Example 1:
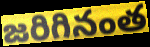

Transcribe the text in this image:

జరిగినంత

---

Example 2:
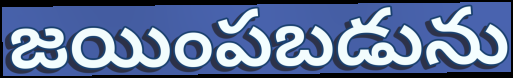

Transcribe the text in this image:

జయింపబడును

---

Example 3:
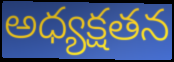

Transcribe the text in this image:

అధ్యక్షతన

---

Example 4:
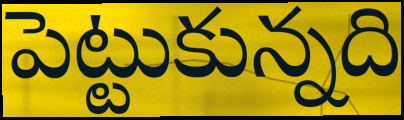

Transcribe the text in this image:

పెట్టుకున్నది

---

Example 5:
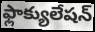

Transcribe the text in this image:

ఫ్లాక్యులేషన్